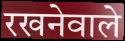
रखनेवाले